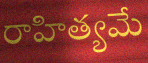
రాహిత్యమే